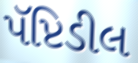
પૅપ્ટિડીલ